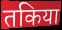
तकिया